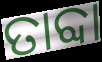
ତାବ୍ଦା